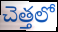
చెత్తలో